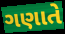
ગણાતે